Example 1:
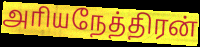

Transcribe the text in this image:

அரியநேத்திரன்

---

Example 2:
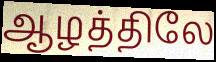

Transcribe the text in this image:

ஆழத்திலே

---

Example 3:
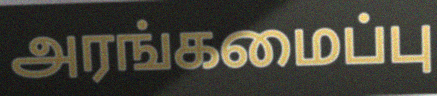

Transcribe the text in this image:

அரங்கமைப்பு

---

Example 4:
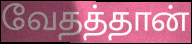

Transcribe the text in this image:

வேதத்தான்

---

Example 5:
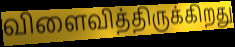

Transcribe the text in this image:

விளைவித்திருக்கிறது